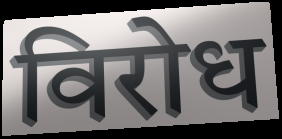
विरोध